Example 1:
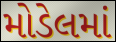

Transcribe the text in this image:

મોડેલમાં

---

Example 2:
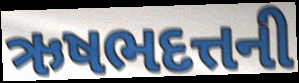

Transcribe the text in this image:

ઋષભદત્તની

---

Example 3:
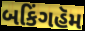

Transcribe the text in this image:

બકિંગહૅમ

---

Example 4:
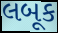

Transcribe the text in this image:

લબૂક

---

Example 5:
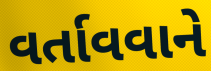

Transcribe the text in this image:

વર્તાવવાને